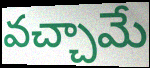
వచ్చామే